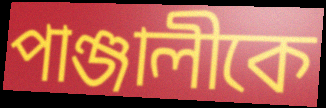
পাঞ্জালীকে